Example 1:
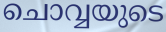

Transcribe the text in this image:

ചൊവ്വയുടെ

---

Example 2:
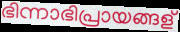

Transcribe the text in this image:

ഭിന്നാഭിപ്രായങ്ങള്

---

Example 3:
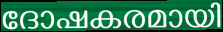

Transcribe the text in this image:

ദോഷകരമായി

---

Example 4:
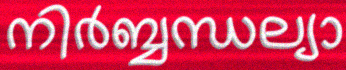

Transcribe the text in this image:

നിർബ്ബന്ധല്യാ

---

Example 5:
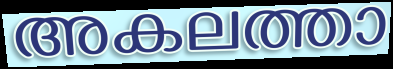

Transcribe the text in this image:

അകലത്താ